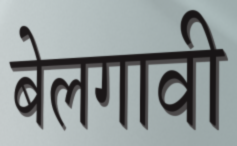
बेलगावी